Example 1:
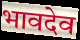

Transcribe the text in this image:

भावदेव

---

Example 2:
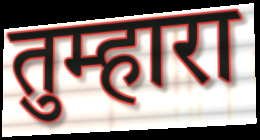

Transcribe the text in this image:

तुम्हारा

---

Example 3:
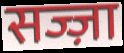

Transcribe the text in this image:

सज्ज़ा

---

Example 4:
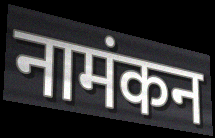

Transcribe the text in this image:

नामंकन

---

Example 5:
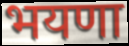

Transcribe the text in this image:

भयणा